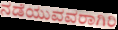
ನಡೆಯುವವರಾಗಿರಿ